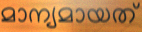
മാന്യമായത്